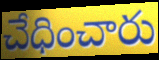
చేధించారు